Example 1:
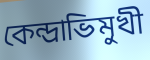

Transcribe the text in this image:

কেন্দ্রাভিমুখী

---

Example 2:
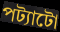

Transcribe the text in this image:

পট্যাটো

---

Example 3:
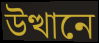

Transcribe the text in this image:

উত্থানে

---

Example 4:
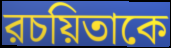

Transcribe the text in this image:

রচয়িতাকে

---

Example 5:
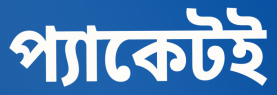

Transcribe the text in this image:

প্যাকেটই